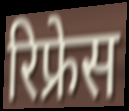
रिफ्रेस